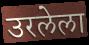
उरलेला